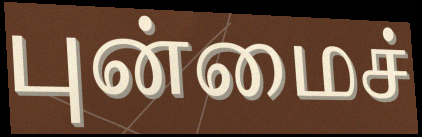
புன்மைச்